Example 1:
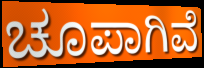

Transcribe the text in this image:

ಚೂಪಾಗಿವೆ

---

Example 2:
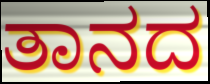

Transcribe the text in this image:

ತಾನದ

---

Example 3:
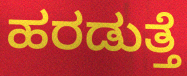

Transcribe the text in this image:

ಹರಡುತ್ತೆ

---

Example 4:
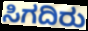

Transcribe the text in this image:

ಸಿಗದಿರು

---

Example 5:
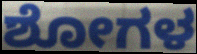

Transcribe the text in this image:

ಶೋಗಳ